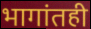
भागांतही